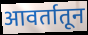
आवर्तातून